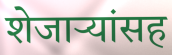
शेजाऱ्यांसह